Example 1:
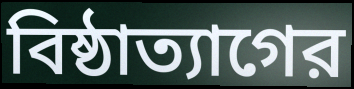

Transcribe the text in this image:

বিষ্ঠাত্যাগের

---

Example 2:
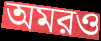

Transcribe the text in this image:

অমরও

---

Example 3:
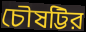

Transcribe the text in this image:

চৌষট্টির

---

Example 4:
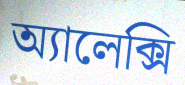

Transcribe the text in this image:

অ্যালেক্সি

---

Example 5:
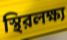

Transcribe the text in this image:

স্থিরলক্ষ্য